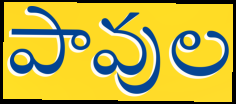
పావుల